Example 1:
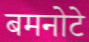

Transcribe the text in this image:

बमनोटे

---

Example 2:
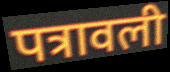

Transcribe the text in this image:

पत्रावली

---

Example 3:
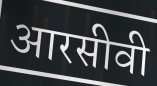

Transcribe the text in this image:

आरसीवी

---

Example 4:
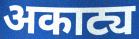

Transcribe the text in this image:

अकाट्य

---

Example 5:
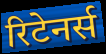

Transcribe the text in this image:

रिटेनर्स